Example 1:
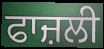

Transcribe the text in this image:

ਫਾਜ਼ਲੀ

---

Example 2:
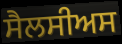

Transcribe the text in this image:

ਸੈਲਸੀਅਸ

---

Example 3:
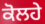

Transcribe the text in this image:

ਕੋਲਹੇ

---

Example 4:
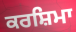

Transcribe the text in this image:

ਕਰਸ਼ਿਮਾ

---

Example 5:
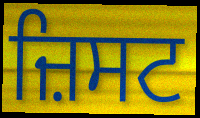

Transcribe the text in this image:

ਜ਼ਿਸਟ